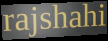
rajshahi